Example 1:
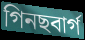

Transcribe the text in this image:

গিনছবাৰ্গ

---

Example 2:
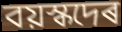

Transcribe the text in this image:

বয়স্কদেৰ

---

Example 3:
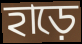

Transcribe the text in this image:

হাড়ে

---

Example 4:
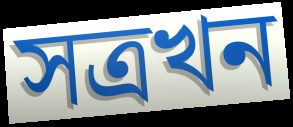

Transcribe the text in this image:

সত্ৰখন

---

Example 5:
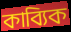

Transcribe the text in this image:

কাব্যিক